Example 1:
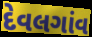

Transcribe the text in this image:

દેવલગાંવ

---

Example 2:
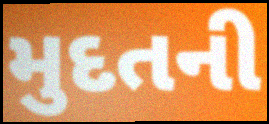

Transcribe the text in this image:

મુદતની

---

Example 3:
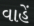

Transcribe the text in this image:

વાહેં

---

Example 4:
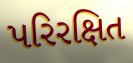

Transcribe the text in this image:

પરિરક્ષિત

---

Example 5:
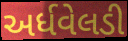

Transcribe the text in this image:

અર્ધવેલડી